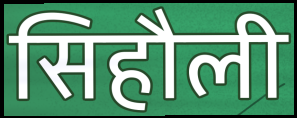
सिहौली